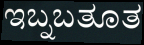
ಇಬ್ನಬತೂತ